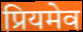
प्रियमेव